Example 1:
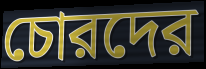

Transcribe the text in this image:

চোরদের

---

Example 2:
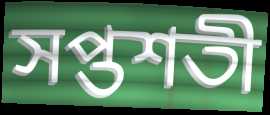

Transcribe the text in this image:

সপ্তশতী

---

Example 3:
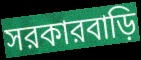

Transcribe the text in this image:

সরকারবাড়ি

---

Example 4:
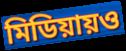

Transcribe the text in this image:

মিডিয়ায়ও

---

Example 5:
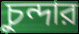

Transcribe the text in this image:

চুন্দার